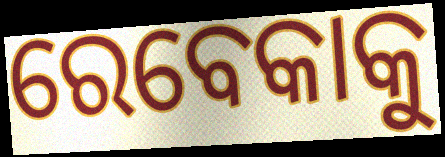
ରେବେକାକୁ